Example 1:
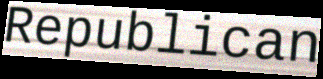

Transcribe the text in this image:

Republican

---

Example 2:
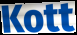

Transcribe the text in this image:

Kott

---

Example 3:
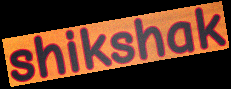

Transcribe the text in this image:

shikshak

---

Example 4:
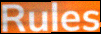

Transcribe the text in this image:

Rules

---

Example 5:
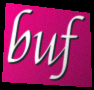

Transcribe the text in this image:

buf